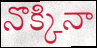
నొక్కినా